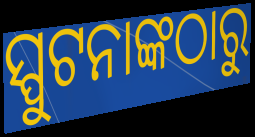
ସ୍ପୁଟନାଙ୍କଠାରୁ